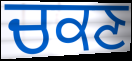
ਚਕਣ